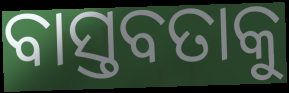
ବାସ୍ତବତାକୁ